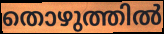
തൊഴുത്തിൽ